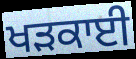
ਖੜਕਾਈ